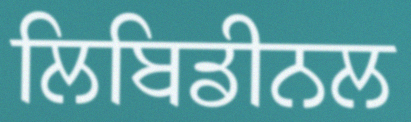
ਲਿਬਿਡੀਨਲ